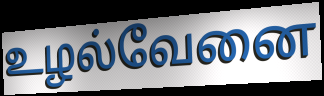
உழல்வேனை